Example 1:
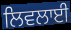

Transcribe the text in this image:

ਲਿਵਲਾਈ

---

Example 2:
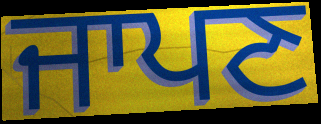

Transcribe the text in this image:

ਜਾਪਣ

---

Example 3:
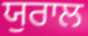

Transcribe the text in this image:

ਯੁਰਾਲ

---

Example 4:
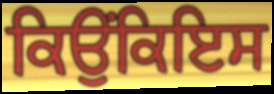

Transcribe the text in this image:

ਕਿਉਂਕਿਇਸ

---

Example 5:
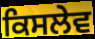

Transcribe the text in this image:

ਕਿਸਲੇਵ